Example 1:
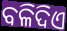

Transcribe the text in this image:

ବଳିଦିଏ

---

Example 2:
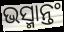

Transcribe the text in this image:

ଭସ୍ମାନ୍ତଂ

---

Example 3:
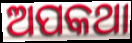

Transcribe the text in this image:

ଅପକଥା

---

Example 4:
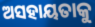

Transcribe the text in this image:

ଅସହାୟତାକୁ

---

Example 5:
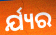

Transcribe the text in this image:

ର୍ଯ୍ୟର